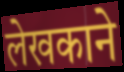
लेखकाने